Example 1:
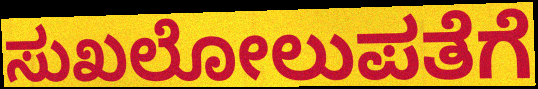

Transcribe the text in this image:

ಸುಖಲೋಲುಪತೆಗೆ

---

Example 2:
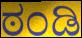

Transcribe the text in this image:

ಠಂಡಿ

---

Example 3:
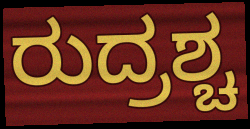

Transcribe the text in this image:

ರುದ್ರಶ್ಚ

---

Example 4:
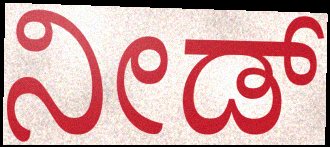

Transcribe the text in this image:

ನೀಡ್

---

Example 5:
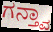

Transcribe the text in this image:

ಗನ್ತ್ವಾ